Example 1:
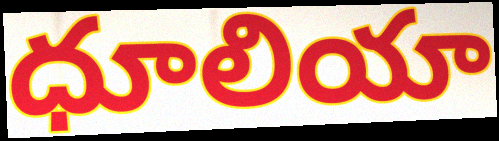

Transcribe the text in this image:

ధూలియా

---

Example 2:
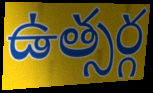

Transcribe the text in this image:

ఉత్సర్గ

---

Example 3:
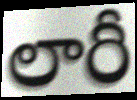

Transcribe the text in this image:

లారీ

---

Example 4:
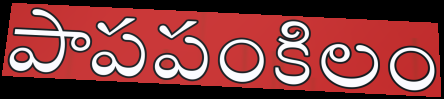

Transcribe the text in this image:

పాపపంకిలం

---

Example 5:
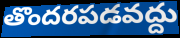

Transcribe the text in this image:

తొందరపడవద్దు